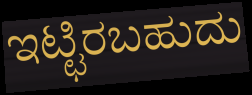
ಇಟ್ಟಿರಬಹುದು